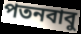
পতনবাবু